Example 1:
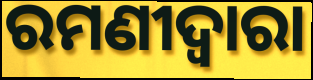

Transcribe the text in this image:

ରମଣୀଦ୍ୱାରା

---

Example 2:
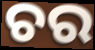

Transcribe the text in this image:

ଚର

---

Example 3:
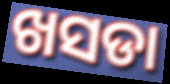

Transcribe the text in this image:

ଖସଡା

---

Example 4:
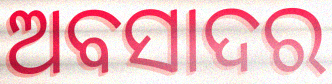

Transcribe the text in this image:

ଅବସାଦର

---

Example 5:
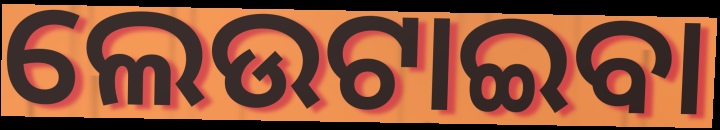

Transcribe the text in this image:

ଲେଉଟାଇବା